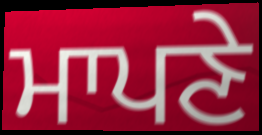
ਮਾਪਣੇ